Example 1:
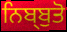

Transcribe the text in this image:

ਨਿਬ੍ਬੁਤੋ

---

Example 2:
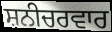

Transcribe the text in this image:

ਸ਼ਨੀਚਰਵਾਰ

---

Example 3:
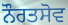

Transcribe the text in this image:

ਨੌਰਤਸੋਵ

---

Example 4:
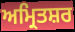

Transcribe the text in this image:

ਅਮ੍ਰਿਤਸ਼ਰ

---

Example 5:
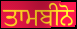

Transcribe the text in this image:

ਤਾਮਬੀਨੋ